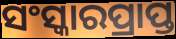
ସଂସ୍କାରପ୍ରାପ୍ତ